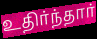
உதிர்ந்தார்